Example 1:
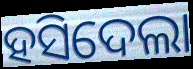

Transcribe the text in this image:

ହସିଦେଲା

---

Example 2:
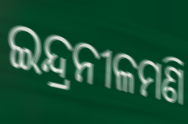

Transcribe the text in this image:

ଇନ୍ଦ୍ରନୀଳମଣି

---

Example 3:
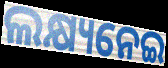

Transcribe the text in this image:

ଲକ୍ଷ୍ୟନେଇ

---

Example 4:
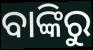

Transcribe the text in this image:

ବାଙ୍କିରୁ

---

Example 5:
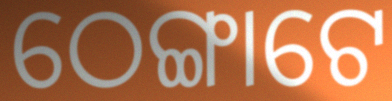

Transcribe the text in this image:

ଠେଙ୍ଗାଟେ